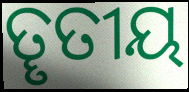
ତୄତୀୟ